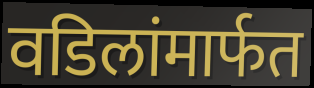
वडिलांमार्फत